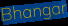
Bhangar